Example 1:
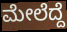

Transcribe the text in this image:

ಮೇಲೆದ್ದೆ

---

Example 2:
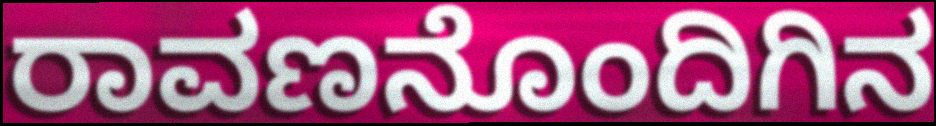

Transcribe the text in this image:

ರಾವಣನೊಂದಿಗಿನ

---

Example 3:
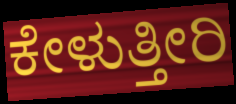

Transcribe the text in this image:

ಕೇಳುತ್ತೀರಿ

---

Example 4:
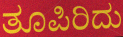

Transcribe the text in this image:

ತೂಪಿರಿದು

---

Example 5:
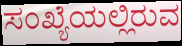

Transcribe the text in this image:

ಸಂಖ್ಯೆಯಲ್ಲಿರುವ